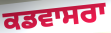
ਕਡਵਾਸਰਾ